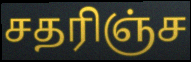
சதரிஞ்ச